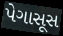
પેગાસૂસ